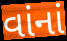
વાંનાં